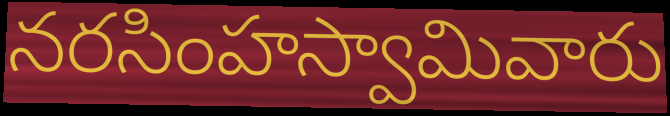
నరసింహస్వామివారు